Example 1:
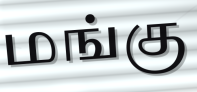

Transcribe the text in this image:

மங்கு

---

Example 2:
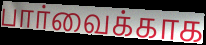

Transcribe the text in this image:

பார்வைக்காக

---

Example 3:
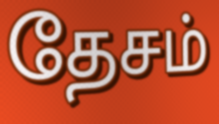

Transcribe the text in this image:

தேசம்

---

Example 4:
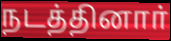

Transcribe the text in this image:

நடத்தினார்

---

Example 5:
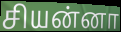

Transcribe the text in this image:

சியன்னா